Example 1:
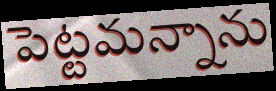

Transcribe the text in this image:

పెట్టమన్నాను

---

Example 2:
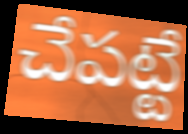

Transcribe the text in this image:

చేపట్టే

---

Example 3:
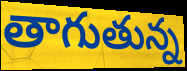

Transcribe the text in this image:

తాగుతున్న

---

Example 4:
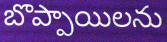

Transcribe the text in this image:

బొప్పాయిలను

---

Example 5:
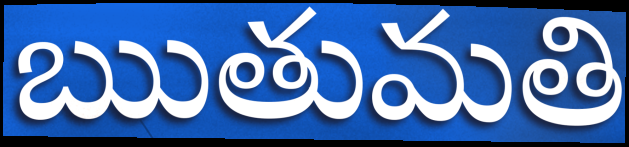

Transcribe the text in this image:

ఋతుమతి